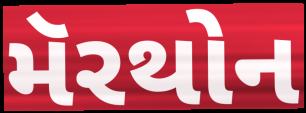
મૅરથોન